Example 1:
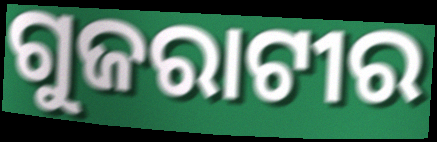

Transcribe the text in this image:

ଗୁଜରାଟୀର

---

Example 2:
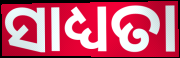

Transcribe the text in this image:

ସାଧ୍ୟତା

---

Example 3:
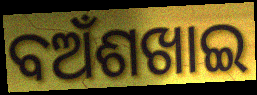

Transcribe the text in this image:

ବଅଁଶଖାଇ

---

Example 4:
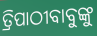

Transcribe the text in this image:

ତ୍ରିପାଠୀବାବୁଙ୍କୁ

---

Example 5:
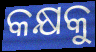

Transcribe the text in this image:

କକ୍ଷକୁ